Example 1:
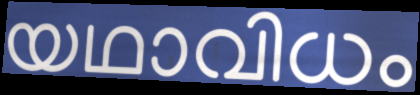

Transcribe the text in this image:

യഥാവിധം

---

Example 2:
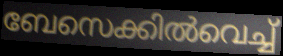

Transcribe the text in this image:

ബേസെക്കിൽവെച്ച്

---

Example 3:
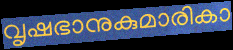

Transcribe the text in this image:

വൃഷഭാനുകുമാരികാ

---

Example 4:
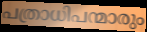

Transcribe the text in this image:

പത്രാധിപന്മാരും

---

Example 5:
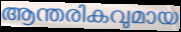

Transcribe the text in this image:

ആന്തരികവുമായ